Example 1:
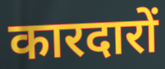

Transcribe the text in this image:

कारदारों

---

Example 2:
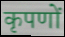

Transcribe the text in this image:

कृपणों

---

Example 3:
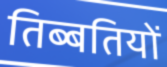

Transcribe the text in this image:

तिब्बतियों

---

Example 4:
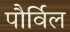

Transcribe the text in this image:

पौर्विल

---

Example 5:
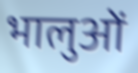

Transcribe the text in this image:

भालुओं